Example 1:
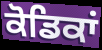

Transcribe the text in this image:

ਕੋਡਿਕਾਂ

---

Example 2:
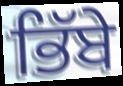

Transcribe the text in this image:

ਭਿੱਬੇ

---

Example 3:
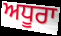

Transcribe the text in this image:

ਅਧੂਰਾ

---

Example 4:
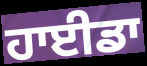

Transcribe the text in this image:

ਹਾਈਡਾ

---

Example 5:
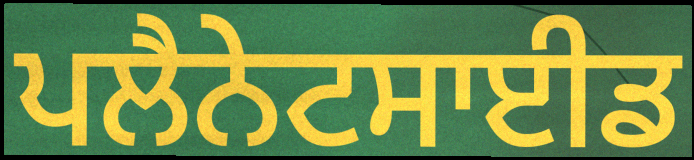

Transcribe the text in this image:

ਪਲੈਨੇਟਸਾਈਡ